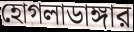
হোগলাডাঙ্গার